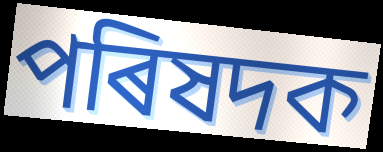
পৰিষদক